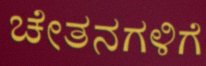
ಚೇತನಗಳಿಗೆ